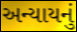
અન્યાયનું